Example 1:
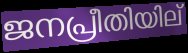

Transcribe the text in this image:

ജനപ്രീതിയില്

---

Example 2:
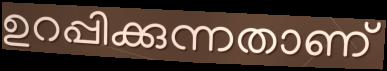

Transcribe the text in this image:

ഉറപ്പിക്കുന്നതാണ്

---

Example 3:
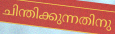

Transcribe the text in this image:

ചിന്തിക്കുന്നതിനു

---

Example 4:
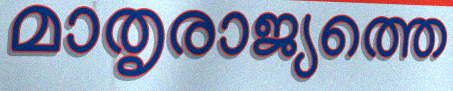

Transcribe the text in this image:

മാതൃരാജ്യത്തെ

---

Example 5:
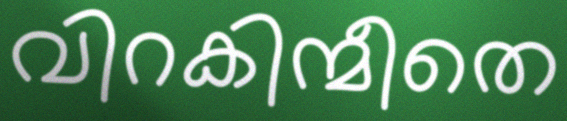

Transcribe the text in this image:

വിറകിന്മീതെ